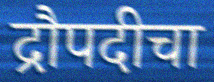
द्रौपदीचा